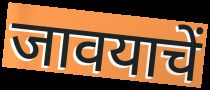
जावयाचें